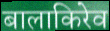
बालाकिरेव